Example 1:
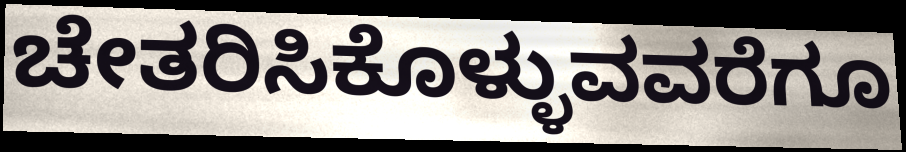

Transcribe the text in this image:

ಚೇತರಿಸಿಕೊಳ್ಳುವವರೆಗೂ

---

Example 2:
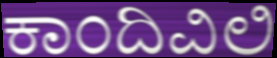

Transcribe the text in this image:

ಕಾಂದಿವಿಲಿ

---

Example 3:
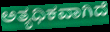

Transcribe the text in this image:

ಅತ್ಯಧಿಕವಾಗಿದೆ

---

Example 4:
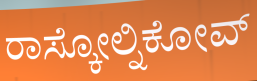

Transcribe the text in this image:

ರಾಸ್ಕೋಲ್ನಿಕೋವ್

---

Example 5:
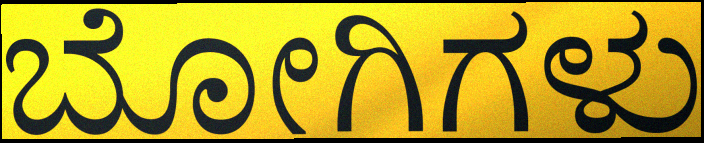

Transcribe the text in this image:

ಬೋಗಿಗಳು